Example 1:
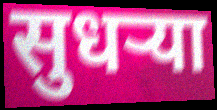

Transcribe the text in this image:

सुधर्‍या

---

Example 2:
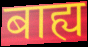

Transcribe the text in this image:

बाह्य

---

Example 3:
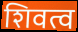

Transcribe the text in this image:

शिवत्व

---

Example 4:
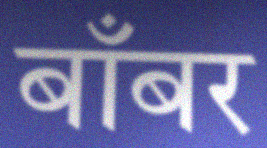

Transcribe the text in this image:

बाँबर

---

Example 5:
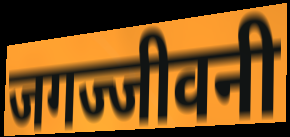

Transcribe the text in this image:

जगज्जीवनी